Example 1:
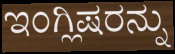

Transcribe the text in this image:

ಇಂಗ್ಲಿಷರನ್ನು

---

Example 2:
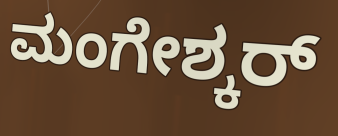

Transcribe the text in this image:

ಮಂಗೇಶ್ಕರ್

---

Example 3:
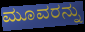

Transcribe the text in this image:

ಮೂವರನ್ನು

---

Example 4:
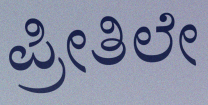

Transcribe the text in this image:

ಪ್ರೀತಿಲೇ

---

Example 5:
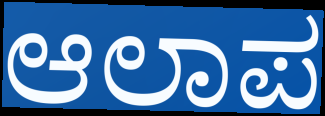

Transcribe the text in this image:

ಆಲಾಪ